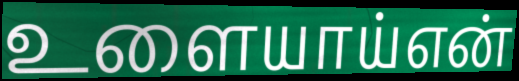
உளையாய்என்